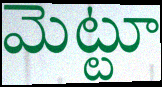
మెట్టూ